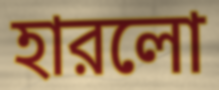
হারলো